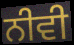
ਨੀਵੀ